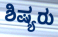
ಶಿಷ್ಯರು